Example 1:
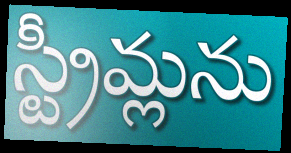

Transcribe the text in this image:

స్ట్రీమ్లను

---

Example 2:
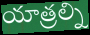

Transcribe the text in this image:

యాత్రల్ని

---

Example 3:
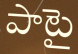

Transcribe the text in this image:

పాటై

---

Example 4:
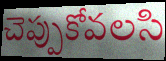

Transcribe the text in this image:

చెప్పుకోవలసి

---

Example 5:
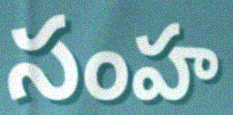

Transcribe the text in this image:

సంహ